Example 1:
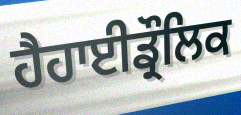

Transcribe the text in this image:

ਹੈਹਾਈਡ੍ਰੌਲਿਕ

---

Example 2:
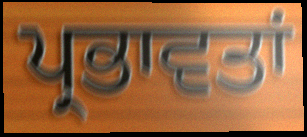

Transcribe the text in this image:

ਪ੍ਰਭਾਵਤਾਂ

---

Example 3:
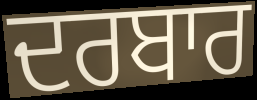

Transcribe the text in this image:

ਦਰਬਾਰ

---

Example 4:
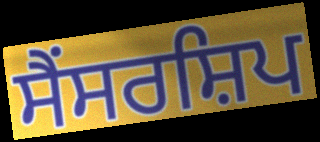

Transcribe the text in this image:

ਸੈਂਸਰਸ਼ਿਪ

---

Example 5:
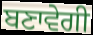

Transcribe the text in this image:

ਬਣਾਵੇਗੀ